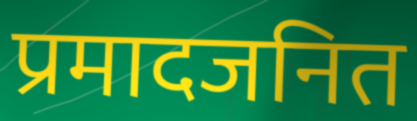
प्रमादजनित